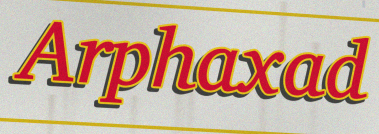
Arphaxad